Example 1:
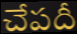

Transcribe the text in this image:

చేపదీ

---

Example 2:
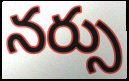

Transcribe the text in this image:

నర్సు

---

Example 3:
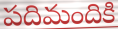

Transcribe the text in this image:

పదిమందికి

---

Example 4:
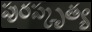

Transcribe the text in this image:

పురస్కృత్య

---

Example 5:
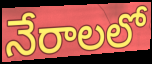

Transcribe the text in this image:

నేరాలలో